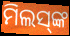
ମିଲସ୍‍ଙ୍କ